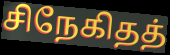
சிநேகிதத்